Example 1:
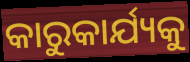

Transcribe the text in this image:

କାରୁକାର୍ଯ୍ୟକୁ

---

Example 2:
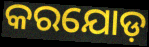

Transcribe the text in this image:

କରଯୋଡ଼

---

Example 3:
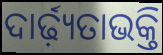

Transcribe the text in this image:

ଦାର୍ଢ଼୍ୟତାଭକ୍ତି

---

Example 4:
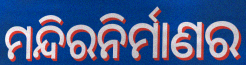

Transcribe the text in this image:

ମନ୍ଦିରନିର୍ମାଣର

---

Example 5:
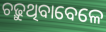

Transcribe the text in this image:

ଚଢ଼ୁଥିବାବେଳେ